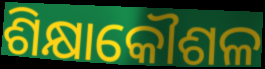
ଶିକ୍ଷାକୌଶଳ